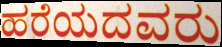
ಹರೆಯದವರು